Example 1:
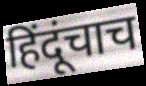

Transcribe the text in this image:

हिंदूंचाच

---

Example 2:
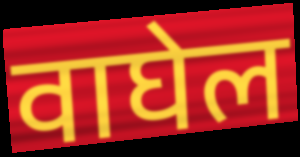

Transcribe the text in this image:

वाघेल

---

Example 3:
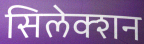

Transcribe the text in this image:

सिलेक्शन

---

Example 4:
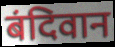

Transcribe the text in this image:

बंदिवान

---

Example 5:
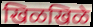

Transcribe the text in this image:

खिळखिळे